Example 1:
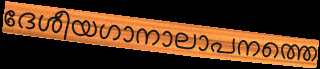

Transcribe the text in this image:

ദേശീയഗാനാലാപനത്തെ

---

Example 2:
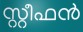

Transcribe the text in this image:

സ്റ്റീഫൻ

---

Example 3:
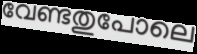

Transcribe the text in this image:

വേണ്ടതുപോലെ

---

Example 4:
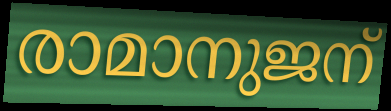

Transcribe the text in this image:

രാമാനുജന്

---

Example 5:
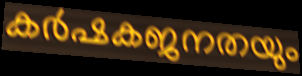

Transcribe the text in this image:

കർഷകജനതയും